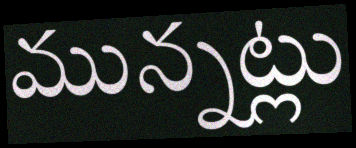
మున్నట్లు